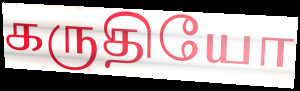
கருதியோ